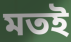
মতই